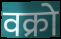
वक्रो